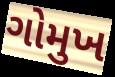
ગોમુખ